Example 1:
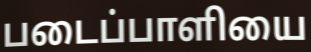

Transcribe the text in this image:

படைப்பாளியை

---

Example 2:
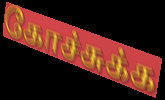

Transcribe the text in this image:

கோச்சுக்க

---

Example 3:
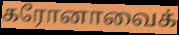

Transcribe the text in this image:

கரோனாவைக்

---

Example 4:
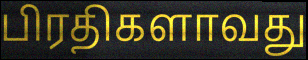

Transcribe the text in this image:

பிரதிகளாவது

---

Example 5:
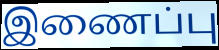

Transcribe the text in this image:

இணைப்பு